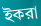
ইকরা